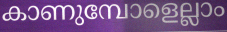
കാണുമ്പോളെല്ലാം